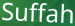
Suffah